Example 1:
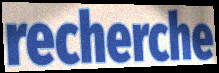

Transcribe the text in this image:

recherche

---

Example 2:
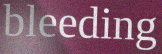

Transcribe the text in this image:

bleeding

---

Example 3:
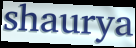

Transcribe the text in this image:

shaurya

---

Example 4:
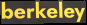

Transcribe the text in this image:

berkeley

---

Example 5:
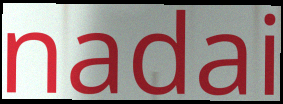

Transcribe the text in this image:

nadai